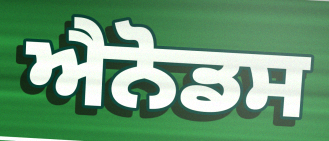
ਐਨੋਡਸ